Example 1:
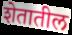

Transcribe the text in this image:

शेतातील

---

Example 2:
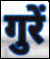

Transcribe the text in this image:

गुरें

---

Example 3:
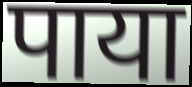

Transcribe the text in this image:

पाया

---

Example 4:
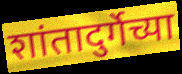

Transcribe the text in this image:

शांतादुर्गेच्या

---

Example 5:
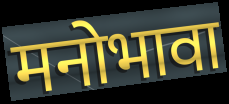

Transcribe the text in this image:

मनोभावा